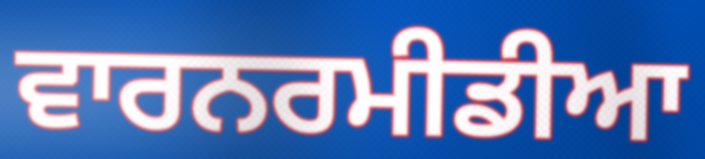
ਵਾਰਨਰਮੀਡੀਆ